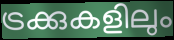
ട്രക്കുകളിലും